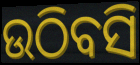
ଉଠିବସି